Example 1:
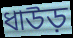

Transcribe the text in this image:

ধাউড়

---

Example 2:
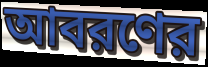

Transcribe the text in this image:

আবরণের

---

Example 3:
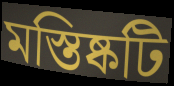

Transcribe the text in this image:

মস্তিষ্কটি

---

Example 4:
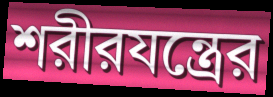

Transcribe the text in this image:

শরীরযন্ত্রের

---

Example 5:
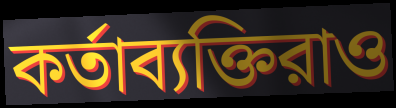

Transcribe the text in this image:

কর্তাব্যক্তিরাও